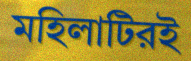
মহিলাটিরই